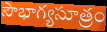
సౌభాగ్యసూత్రం